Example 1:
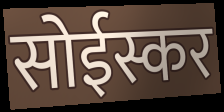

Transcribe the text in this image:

सोईस्कर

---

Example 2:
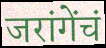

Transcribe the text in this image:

जरांगेंचं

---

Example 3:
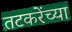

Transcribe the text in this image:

तटकरेंच्या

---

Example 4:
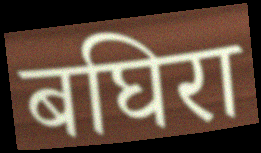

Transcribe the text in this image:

बघिरा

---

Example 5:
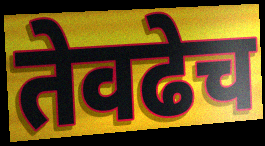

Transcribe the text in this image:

तेवढेच